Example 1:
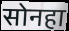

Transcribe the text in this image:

सोनहा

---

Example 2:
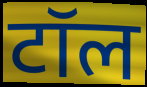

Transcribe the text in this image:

टॉल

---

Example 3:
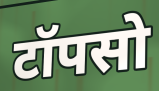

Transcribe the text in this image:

टॉपसो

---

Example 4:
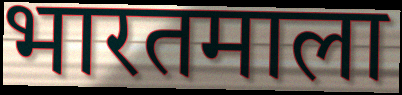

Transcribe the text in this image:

भारतमाला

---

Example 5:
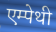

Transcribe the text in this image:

एम्पेथी